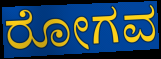
ರೋಗವ